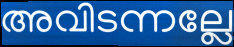
അവിടന്നല്ലേ